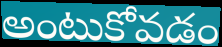
అంటుకోవడం